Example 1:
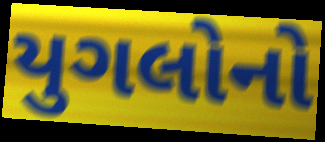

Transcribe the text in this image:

યુગલોનો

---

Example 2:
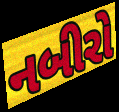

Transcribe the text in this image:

નબીરો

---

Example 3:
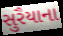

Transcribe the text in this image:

સુરૈયાના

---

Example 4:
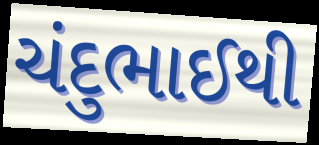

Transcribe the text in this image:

ચંદુભાઈથી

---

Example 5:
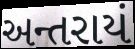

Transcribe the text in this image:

અન્તરાયં